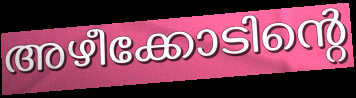
അഴീക്കോടിന്റെ